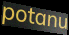
potanu